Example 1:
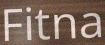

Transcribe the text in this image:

Fitna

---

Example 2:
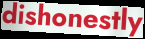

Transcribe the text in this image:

dishonestly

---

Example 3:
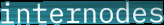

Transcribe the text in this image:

internodes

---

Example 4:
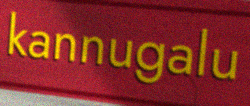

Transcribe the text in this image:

kannugalu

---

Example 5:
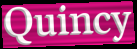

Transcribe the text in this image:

Quincy